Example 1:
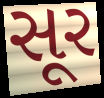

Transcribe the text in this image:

સૂર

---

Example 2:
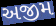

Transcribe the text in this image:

અજીમ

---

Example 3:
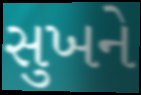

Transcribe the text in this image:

સુખને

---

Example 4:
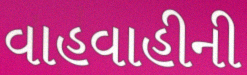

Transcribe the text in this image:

વાહવાહીની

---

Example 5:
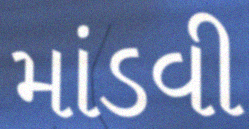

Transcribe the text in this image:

માંડવી